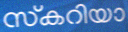
സ്‌കറിയാ